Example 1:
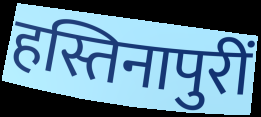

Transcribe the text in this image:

हस्तिनापुरीं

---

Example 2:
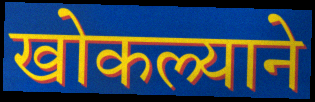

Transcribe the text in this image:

खोकल्याने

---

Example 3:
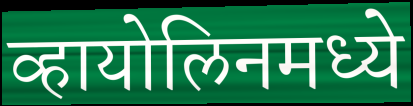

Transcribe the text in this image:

व्हायोलिनमध्ये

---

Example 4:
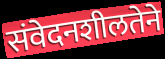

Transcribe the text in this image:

संवेदनशीलतेने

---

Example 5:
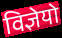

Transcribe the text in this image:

विज्ञेयो